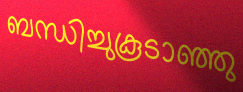
ബന്ധിച്ചുകൂടാഞ്ഞു